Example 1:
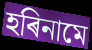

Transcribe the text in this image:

হৰিনামে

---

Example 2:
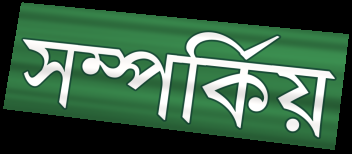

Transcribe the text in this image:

সম্পৰ্কিয়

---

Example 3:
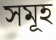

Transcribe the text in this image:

সমূহ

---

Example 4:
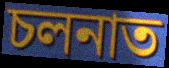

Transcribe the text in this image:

চলনাত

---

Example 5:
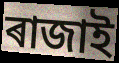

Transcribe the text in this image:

ৰাজাই